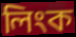
লিংক